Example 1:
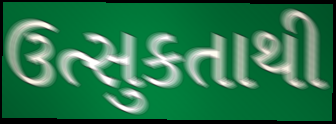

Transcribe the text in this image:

ઉત્સુકતાથી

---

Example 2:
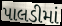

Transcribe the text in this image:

પાલડીમાં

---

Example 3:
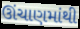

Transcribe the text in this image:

ઊંચાણમાંથી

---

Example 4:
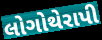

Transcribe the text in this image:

લોગોથેરાપી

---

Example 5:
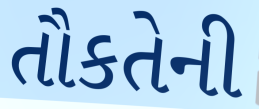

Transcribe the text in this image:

તૌકતેની